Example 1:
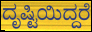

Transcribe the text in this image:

ದೃಷ್ಟಿಯಿದ್ದರೆ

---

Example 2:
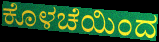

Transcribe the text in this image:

ಕೊಳಚೆಯಿಂದ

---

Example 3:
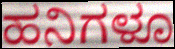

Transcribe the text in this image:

ಹನಿಗಳೂ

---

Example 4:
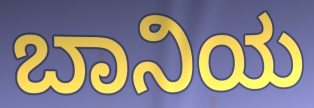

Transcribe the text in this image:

ಬಾನಿಯ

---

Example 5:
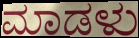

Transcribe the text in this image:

ಮಾಡಳು